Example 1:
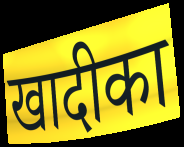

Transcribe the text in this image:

खादीका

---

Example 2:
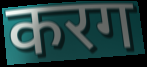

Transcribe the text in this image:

करग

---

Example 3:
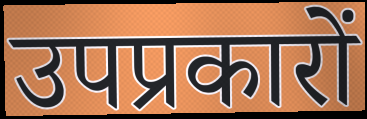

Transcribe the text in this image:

उपप्रकारों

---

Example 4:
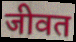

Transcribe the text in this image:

जीवत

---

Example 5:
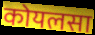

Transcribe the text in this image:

कोयलसा